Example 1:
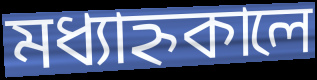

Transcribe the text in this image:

মধ্যাহ্নকালে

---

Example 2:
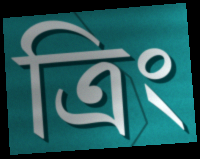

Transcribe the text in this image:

ত্রিং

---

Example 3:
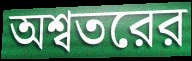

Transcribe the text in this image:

অশ্বতরের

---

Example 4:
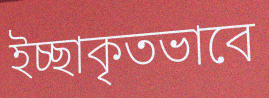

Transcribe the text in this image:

ইচ্ছাকৃতভাবে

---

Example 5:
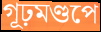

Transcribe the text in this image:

গূঢ়মণ্ডপে